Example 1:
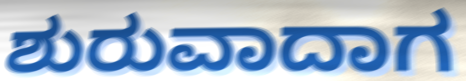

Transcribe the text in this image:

ಶುರುವಾದಾಗ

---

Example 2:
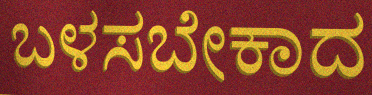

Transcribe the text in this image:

ಬಳಸಬೇಕಾದ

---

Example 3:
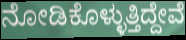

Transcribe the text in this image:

ನೋಡಿಕೊಳ್ಳುತ್ತಿದ್ದೇವೆ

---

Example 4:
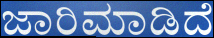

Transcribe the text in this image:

ಜಾರಿಮಾಡಿದೆ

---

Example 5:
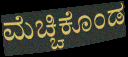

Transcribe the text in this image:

ಮೆಚ್ಚಿಕೊಂಡ